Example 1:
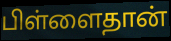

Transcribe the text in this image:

பிள்ளைதான்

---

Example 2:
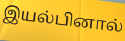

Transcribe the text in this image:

இயல்பினால்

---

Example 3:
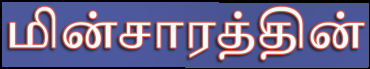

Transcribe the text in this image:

மின்சாரத்தின்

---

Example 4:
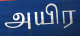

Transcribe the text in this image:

அயிர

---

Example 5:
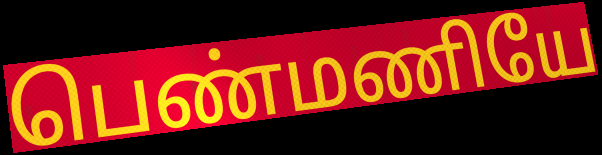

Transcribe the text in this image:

பெண்மணியே